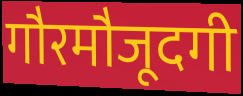
गौरमौजूदगी